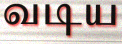
வடிய